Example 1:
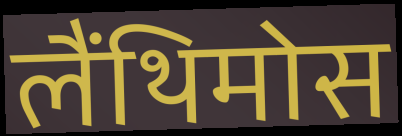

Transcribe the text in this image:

लैंथिमोस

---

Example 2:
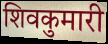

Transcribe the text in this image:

शिवकुमारी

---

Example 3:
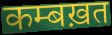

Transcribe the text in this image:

कम्बख़त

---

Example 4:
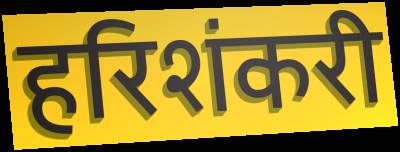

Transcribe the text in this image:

हरिशंकरी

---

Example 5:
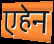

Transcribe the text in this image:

एहेन